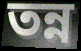
তন্ন